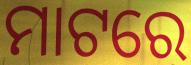
ମାଟରେ